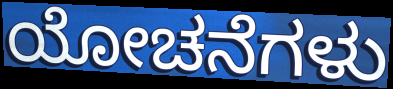
ಯೋಚನೆಗಳು